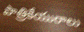
పాత్రికేయురాలు